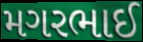
મગરભાઈ